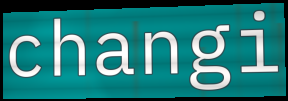
changi